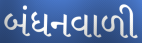
બંધનવાળી